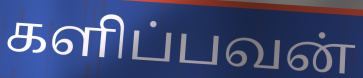
களிப்பவன்